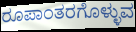
ರೂಪಾಂತರಗೊಳ್ಳುವ